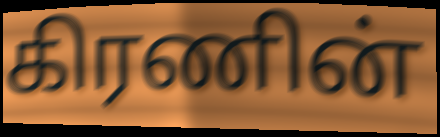
கிரணின்